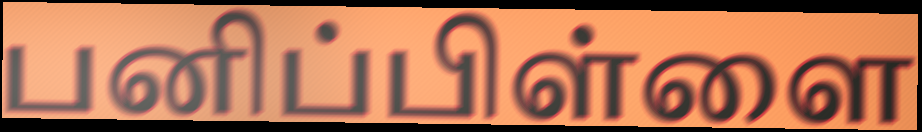
பனிப்பிள்ளை